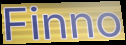
Finno